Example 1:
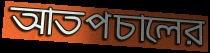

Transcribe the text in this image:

আতপচালের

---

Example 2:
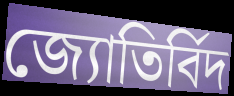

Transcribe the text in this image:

জ্যোতির্বিদ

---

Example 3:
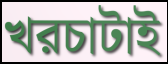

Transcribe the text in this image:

খরচাটাই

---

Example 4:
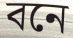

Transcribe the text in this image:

বনে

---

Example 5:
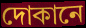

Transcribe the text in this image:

দোকানে